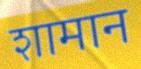
शामान